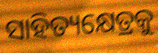
ସାହିତ୍ୟକ୍ଷେତ୍ରକୁ